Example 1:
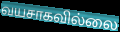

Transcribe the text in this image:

வயசாகவில்லை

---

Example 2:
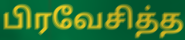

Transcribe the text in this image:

பிரவேசித்த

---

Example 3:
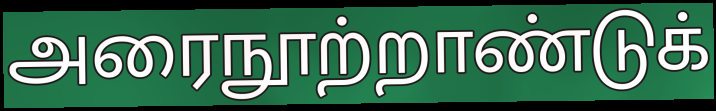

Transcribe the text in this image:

அரைநூற்றாண்டுக்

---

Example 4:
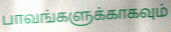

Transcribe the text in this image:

பாவங்களுக்காகவும்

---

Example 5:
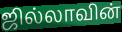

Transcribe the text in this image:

ஜில்லாவின்